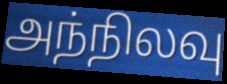
அந்நிலவு